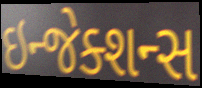
ઇન્જેક્શન્સ